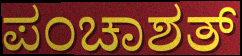
ಪಂಚಾಶತ್